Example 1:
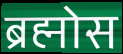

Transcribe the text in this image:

ब्रह्मोस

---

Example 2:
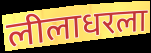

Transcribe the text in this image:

लीलाधरला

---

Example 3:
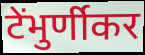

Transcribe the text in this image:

टेंभुर्णीकर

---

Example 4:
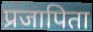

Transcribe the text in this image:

प्रजापिता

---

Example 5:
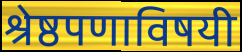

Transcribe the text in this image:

श्रेष्ठपणाविषयी